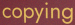
copying